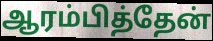
ஆரம்பித்தேன்